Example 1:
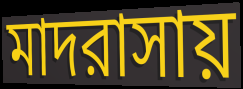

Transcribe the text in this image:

মাদরাসায়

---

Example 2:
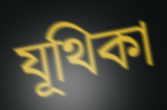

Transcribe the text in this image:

যূথিকা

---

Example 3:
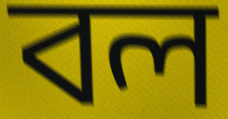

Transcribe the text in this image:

বল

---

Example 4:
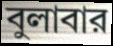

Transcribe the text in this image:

বুলাবার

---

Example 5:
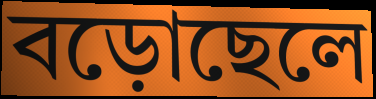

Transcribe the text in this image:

বড়োছেলে